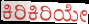
ಕಿರಿಕಿರಿಯೇ